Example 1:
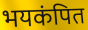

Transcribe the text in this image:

भयकंपित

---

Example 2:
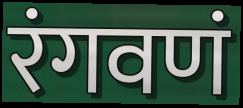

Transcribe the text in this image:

रंगवणं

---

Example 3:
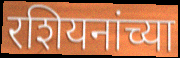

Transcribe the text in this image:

रशियनांच्या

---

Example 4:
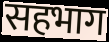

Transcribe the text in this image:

सहभाग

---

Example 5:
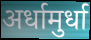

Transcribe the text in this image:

अर्धामुर्धा